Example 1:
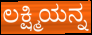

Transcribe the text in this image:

ಲಕ್ಷ್ಮಿಯನ್ನ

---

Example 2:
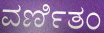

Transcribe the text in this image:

ವರ್ಣಿತಂ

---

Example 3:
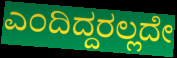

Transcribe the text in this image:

ಎಂದಿದ್ದರಲ್ಲದೇ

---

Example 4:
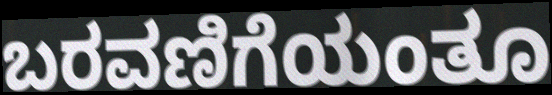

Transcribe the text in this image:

ಬರವಣಿಗೆಯಂತೂ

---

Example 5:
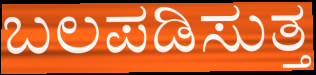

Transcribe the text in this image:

ಬಲಪಡಿಸುತ್ತ